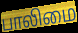
பாலிமை